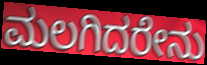
ಮಲಗಿದರೇನು